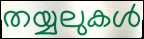
തയ്യലുകൾ